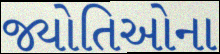
જ્યોતિઓના